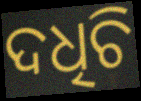
ଦଧିଚି